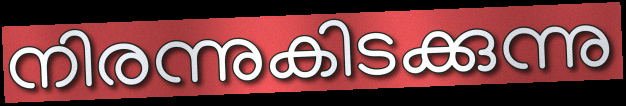
നിരന്നുകിടക്കുന്നു